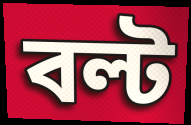
বল্ট